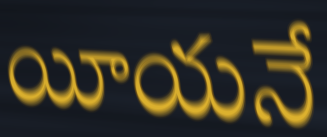
యీయనే